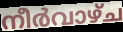
നീർവാഴ്ച